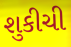
શુકીચી